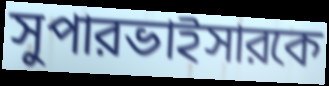
সুপারভাইসারকে